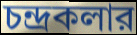
চন্দ্রকলার